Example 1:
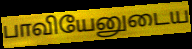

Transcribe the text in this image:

பாவியேனுடைய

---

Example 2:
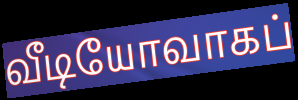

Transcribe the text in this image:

வீடியோவாகப்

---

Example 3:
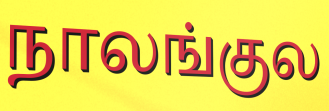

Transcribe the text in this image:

நாலங்குல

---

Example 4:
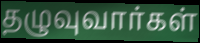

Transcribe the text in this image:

தழுவுவார்கள்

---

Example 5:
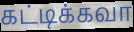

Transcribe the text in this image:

கட்டிக்கவா